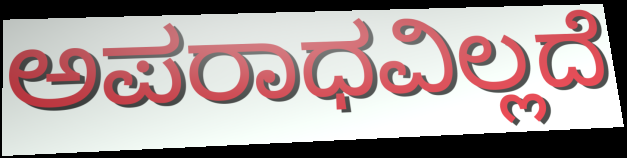
ಅಪರಾಧವಿಲ್ಲದೆ